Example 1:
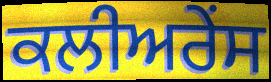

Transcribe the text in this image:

ਕਲੀਅਰੇਂਸ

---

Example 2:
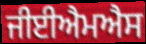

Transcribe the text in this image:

ਜੀਈਐਮਐਸ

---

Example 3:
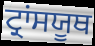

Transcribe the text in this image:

ਟ੍ਰਾਂਸਯੂਥ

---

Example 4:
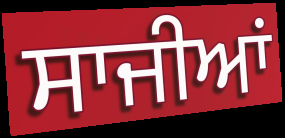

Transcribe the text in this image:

ਸਾਜੀਆਂ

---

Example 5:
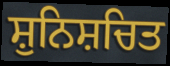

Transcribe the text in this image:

ਸ਼ੁਨਿਸ਼ਚਿਤ